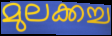
മുലക്കച്ച